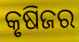
କୃଷିଜର